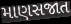
માણસજાત